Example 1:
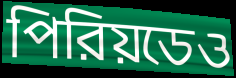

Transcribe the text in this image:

পিরিয়ডেও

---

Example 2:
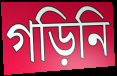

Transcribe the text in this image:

গড়িনি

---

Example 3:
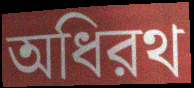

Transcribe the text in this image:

অধিরথ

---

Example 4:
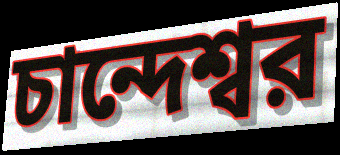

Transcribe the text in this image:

চান্দেশ্বর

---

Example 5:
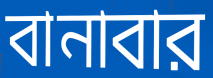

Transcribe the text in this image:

বানাবার